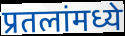
प्रतलांमध्ये